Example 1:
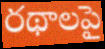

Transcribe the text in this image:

రథాలపై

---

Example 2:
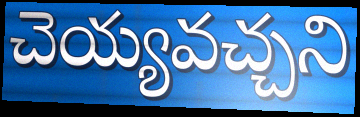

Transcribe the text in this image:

చెయ్యవచ్చని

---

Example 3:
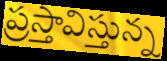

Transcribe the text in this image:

ప్రస్తావిస్తున్న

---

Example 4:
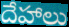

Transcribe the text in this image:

దేహాలు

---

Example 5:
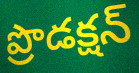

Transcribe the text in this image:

ప్రొడక్షన్